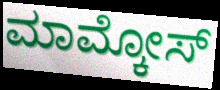
ಮಾಮ್ಕೋಸ್